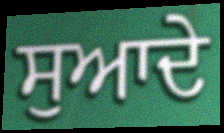
ਸੁਆਦੇ